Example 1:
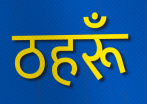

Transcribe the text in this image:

ठहरूँ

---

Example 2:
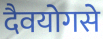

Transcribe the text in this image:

दैवयोगसे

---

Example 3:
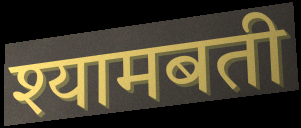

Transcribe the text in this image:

श्यामबती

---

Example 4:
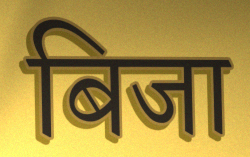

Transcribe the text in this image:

बिजा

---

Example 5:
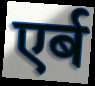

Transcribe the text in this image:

एर्ब